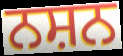
ਨਸ਼ਨ